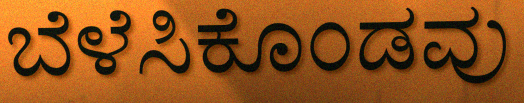
ಬೆಳೆಸಿಕೊಂಡವು